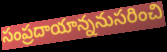
సంప్రదాయాన్ననుసరించి